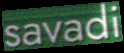
savadi